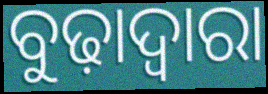
ବୁଢ଼ାଦ୍ୱାରା